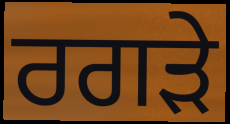
ਰਗੜੇ